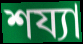
শয্যা